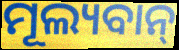
ମୂଲ୍ୟବାନ୍